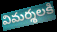
విమర్శలకి